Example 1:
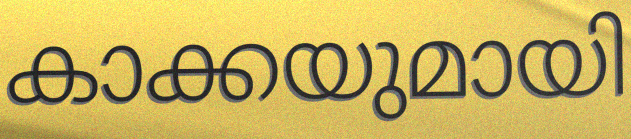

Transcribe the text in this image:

കാക്കയുമായി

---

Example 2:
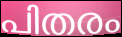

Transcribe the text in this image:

പിതരം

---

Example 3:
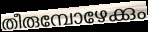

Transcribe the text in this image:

തീരുമ്പോഴേക്കും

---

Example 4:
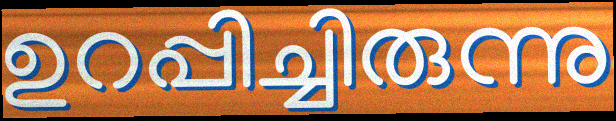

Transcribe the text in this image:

ഉറപ്പിച്ചിരുന്നു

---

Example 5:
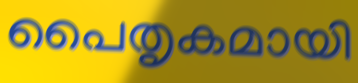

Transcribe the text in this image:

പൈതൃകമായി